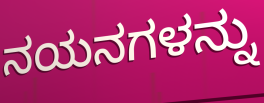
ನಯನಗಳನ್ನು